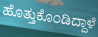
ಹೊತ್ತುಕೊಂಡಿದ್ದಾಳೆ